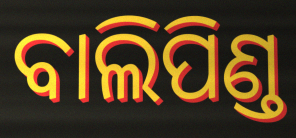
ବାଲିପିଣ୍ଡ